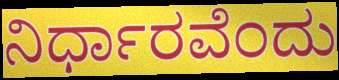
ನಿರ್ಧಾರವೆಂದು